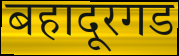
बहादूरगड